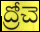
ద్రోచె